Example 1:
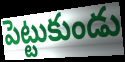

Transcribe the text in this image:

పెట్టుకుండు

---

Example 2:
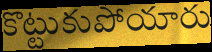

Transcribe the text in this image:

కొట్టుకుపోయారు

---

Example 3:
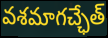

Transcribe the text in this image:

వశమాగచ్ఛేత్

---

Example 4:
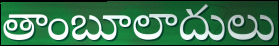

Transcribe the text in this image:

తాంబూలాదులు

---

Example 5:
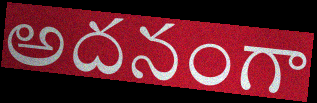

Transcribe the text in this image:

అదనంగా